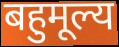
बहुमूल्य